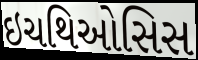
ઇચથિઓસિસ